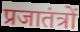
प्रजातंत्रों